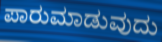
ಪಾರುಮಾಡುವುದು